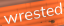
wrested